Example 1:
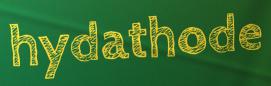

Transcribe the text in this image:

hydathode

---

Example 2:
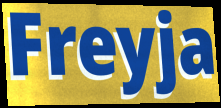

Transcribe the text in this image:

Freyja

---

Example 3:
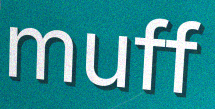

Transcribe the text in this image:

muff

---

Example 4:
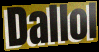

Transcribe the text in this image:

Dallol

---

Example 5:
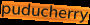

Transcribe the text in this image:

puducherry